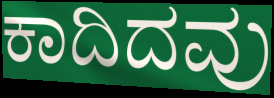
ಕಾದಿದವು